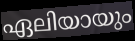
ഏലിയായും